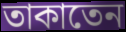
তাকাতেন